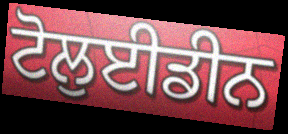
ਟੋਲੁਈਡੀਨ